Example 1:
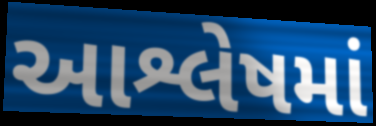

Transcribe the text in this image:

આશ્લેષમાં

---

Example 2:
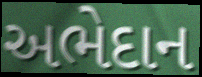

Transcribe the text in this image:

અભેદાન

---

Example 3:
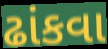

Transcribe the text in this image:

ઢાંકવા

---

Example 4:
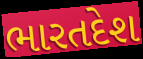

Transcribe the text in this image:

ભારતદેશ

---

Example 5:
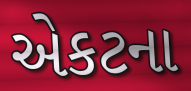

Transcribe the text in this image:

એકટના